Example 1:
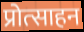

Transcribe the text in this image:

प्रोत्‍साहन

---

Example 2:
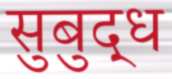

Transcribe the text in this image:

सुबुद्ध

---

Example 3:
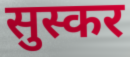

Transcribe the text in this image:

सुस्कर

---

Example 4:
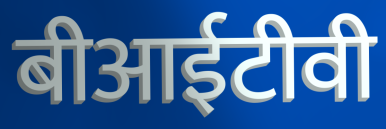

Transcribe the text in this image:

बीआईटीवी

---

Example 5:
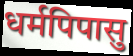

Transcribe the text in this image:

धर्मपिपासु